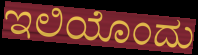
ಇಲಿಯೊಂದು